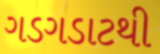
ગડગડાટથી